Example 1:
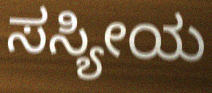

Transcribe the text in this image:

ಸಸ್ಯೀಯ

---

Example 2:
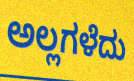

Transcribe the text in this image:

ಅಲ್ಲಗಳೆದು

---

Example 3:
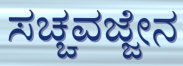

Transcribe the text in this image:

ಸಚ್ಚವಜ್ಜೇನ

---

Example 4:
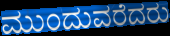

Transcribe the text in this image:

ಮುಂದುವರೆದರು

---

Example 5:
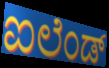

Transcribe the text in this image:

ಐಲೆಂಡ್